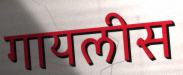
गायलीस